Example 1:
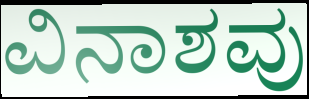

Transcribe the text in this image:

ವಿನಾಶವು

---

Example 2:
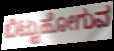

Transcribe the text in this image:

ಬಿಟ್ಟುಹೋಗುವ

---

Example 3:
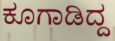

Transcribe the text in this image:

ಕೂಗಾಡಿದ್ದ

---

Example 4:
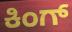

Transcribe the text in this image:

ಕಿಂಗ್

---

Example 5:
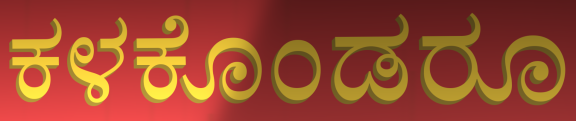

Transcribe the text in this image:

ಕಳಕೊಂಡರೂ